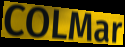
COLMar